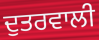
ਦੁਤਰਵਾਲੀ